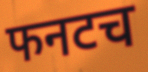
फनटच